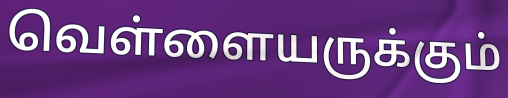
வெள்ளையருக்கும்